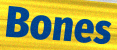
Bones